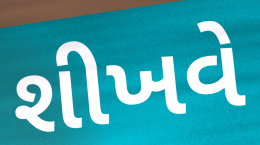
શીખવે